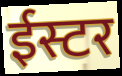
ईस्टर